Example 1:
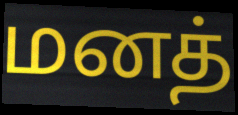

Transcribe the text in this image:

மனத்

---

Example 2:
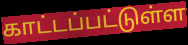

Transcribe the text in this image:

காட்டப்பட்டுள்ள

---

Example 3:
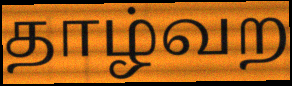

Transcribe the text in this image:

தாழ்வற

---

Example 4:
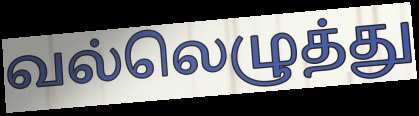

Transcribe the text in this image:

வல்லெழுத்து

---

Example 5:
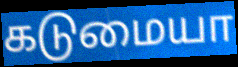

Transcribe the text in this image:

கடுமையா